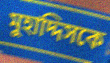
মুহাদ্দিসকে